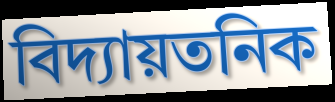
বিদ্যায়তনিক